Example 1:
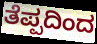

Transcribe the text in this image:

ತೆಪ್ಪದಿಂದ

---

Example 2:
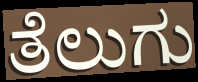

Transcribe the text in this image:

ತೆಲುಗು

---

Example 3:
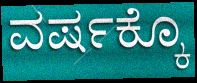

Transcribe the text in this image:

ವರ್ಷಕ್ಕೊ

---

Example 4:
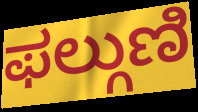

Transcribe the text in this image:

ಫಲ್ಗುಣಿ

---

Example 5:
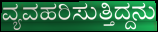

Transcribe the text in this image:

ವ್ಯವಹರಿಸುತ್ತಿದ್ದನು